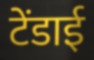
टेंडाई